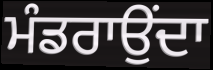
ਮੰਡਰਾਉਂਦਾ